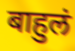
बाहुलं